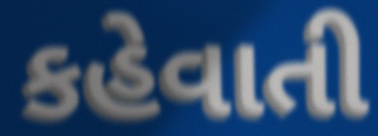
કહેવાતી